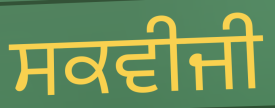
ਸਕਵੀਜੀ